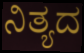
ನಿತ್ಯದ